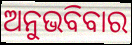
ଅନୁଭବିବାର